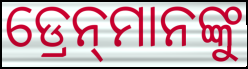
ଡ୍ରେନ୍‌ମାନଙ୍କୁ